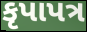
કૃપાપત્ર